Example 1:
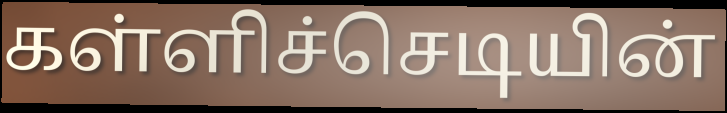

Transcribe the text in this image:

கள்ளிச்செடியின்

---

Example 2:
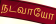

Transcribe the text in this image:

நடவாயோ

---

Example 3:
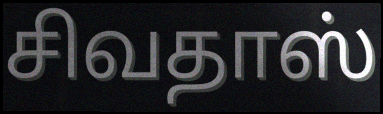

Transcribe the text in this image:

சிவதாஸ்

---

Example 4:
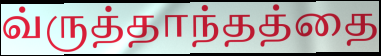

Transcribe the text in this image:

வ்ருத்தாந்தத்தை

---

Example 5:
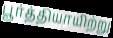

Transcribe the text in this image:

பூர்த்தியாயிற்று